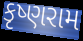
કૃષ્ણરામ